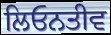
ਲਿਓਨਤੀਵ